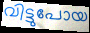
വിട്ടുപോയ